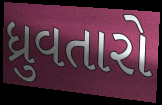
ધ્રુવતારો